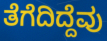
ತೆಗೆದಿದ್ದೆವು